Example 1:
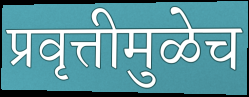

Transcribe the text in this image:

प्रवृत्तीमुळेच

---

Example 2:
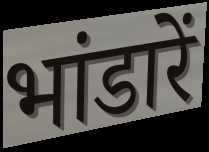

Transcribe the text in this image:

भांडारें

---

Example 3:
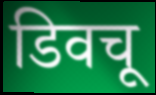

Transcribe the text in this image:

डिवचू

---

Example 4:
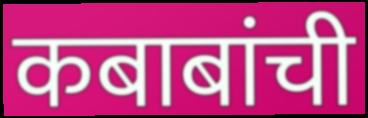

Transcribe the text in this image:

कबाबांची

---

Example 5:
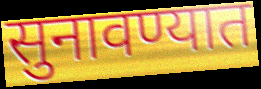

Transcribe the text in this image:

सुनावण्यात